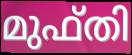
മുഫ്തി